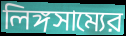
লিঙ্গসাম্যের